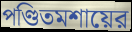
পণ্ডিতমশায়ের